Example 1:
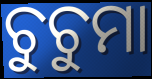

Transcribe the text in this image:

ଚୁଚୁମା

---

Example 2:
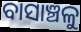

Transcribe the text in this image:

ବାସାଞ୍ଚଳୁ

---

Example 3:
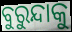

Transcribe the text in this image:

ବୁରୁନ୍ଦାକୁ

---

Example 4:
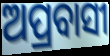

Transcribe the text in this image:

ଅପ୍ରବାସୀ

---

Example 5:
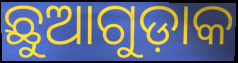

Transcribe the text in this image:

ଛୁଆଗୁଡ଼ାକ